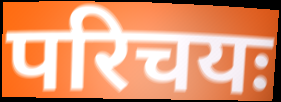
परिचयः